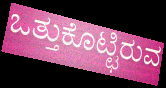
ಒತ್ತುಕೊಟ್ಟಿರುವ